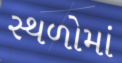
સ્થળોમાં